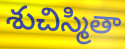
శుచిస్మితా